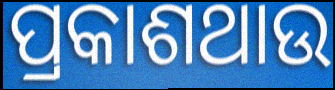
ପ୍ରକାଶଥାଉ